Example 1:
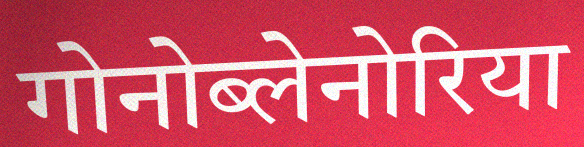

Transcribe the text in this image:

गोनोब्लेनोरिया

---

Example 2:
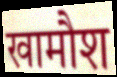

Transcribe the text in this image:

खामौश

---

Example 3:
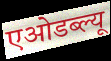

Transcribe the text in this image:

एओडब्ल्यू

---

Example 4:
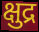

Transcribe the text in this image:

क्षुद्र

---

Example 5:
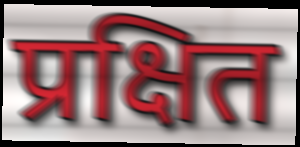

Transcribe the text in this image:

प्रक्षित